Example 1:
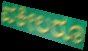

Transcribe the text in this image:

ವಕೀಲರೂ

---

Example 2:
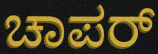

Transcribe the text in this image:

ಚಾಪರ್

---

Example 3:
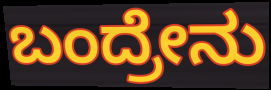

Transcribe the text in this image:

ಬಂದ್ರೇನು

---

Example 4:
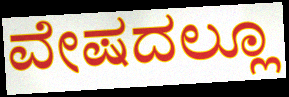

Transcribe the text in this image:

ವೇಷದಲ್ಲೂ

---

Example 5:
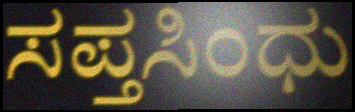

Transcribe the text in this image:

ಸಪ್ತಸಿಂಧು